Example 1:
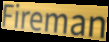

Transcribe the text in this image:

Fireman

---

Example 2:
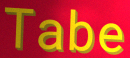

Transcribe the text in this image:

Tabe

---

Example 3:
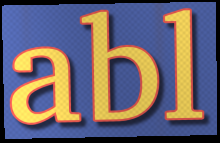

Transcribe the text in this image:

abl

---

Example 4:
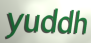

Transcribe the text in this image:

yuddh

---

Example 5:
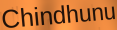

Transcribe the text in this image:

Chindhunu